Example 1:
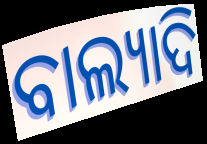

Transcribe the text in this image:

ବାଲ୍ୟାଦି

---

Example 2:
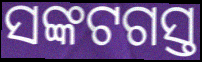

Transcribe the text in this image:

ସଙ୍କଟଗସ୍ତ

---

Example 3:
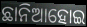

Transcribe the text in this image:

ଛାନିଆହୋଇ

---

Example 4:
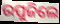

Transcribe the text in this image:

ଉପୁଜିଲେ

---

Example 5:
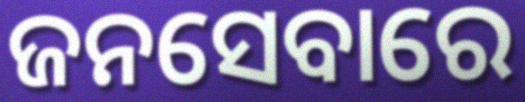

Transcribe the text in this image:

ଜନସେବାରେ